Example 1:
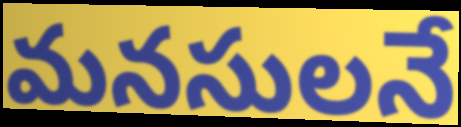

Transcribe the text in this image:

మనసులనే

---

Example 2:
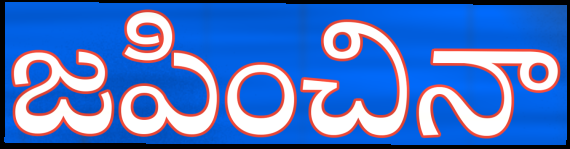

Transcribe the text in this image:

జపించినా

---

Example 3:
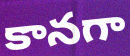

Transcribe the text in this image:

కానగా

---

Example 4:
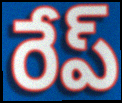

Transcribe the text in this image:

రేప్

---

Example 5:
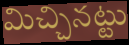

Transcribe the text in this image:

మిచ్చినట్టు